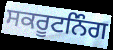
ਸਕਰੂਟਨਿੰਗ